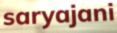
saryajani